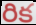
రిక